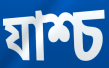
যাশ্চ